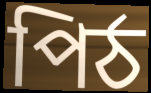
পিঠ